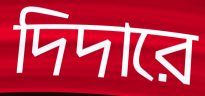
দিদারে